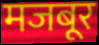
मजबूर